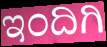
ಇಂದಿಗಿ